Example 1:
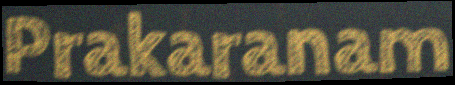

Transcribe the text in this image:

Prakaranam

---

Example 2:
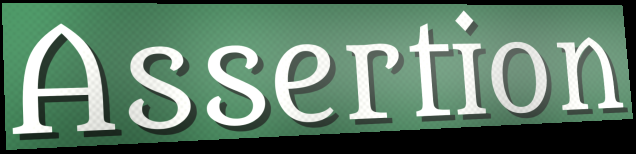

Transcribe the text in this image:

Assertion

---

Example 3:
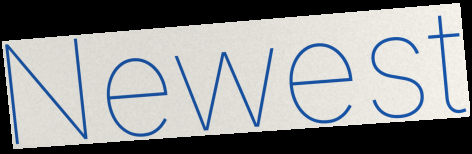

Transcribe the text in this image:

Newest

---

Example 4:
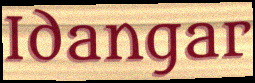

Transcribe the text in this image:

Idangar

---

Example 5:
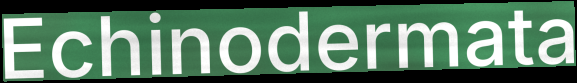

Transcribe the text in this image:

Echinodermata